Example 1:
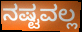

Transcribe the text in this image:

ನಷ್ಟವಲ್ಲ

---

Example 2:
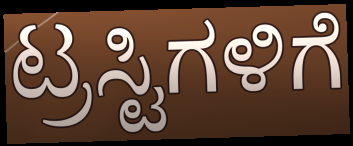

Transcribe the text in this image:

ಟ್ರಸ್ಟಿಗಳಿಗೆ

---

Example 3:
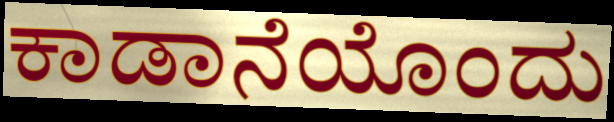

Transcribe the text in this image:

ಕಾಡಾನೆಯೊಂದು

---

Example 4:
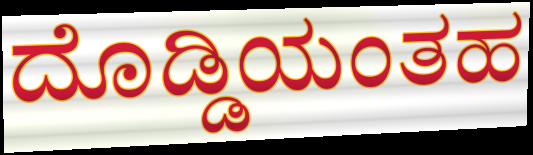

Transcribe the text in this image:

ದೊಡ್ಡಿಯಂತಹ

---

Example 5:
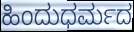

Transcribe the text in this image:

ಹಿಂದುಧರ್ಮದ